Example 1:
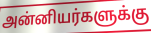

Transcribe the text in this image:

அன்னியர்களுக்கு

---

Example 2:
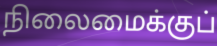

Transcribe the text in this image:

நிலைமைக்குப்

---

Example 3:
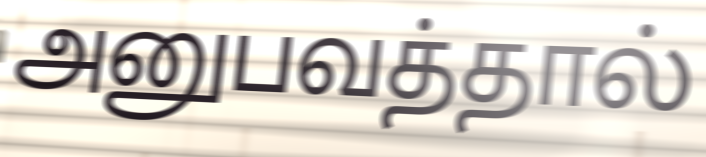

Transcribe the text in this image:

அனுபவத்தால்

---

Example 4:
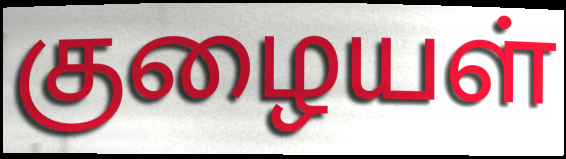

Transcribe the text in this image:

குழையள்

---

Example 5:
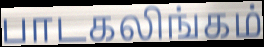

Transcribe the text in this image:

பாடகலிங்கம்